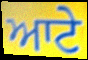
ਆਟੇ